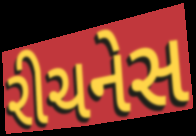
રીચનેસ